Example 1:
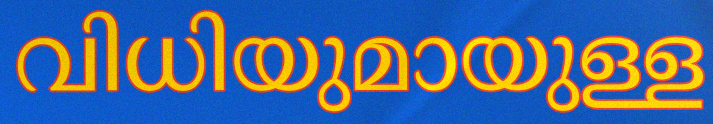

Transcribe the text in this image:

വിധിയുമായുള്ള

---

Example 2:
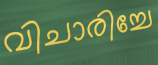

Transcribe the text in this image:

വിചാരിച്ചേ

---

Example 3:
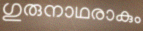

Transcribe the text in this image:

ഗുരുനാഥരാകും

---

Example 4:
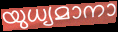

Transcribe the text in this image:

യുധ്യമാനാ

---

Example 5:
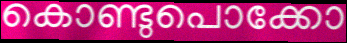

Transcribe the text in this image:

കൊണ്ടുപൊക്കോ